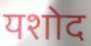
यशोद